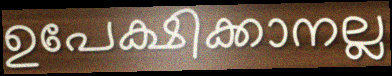
ഉപേക്ഷിക്കാനല്ല